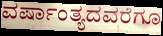
ವರ್ಷಾಂತ್ಯದವರೆಗೂ